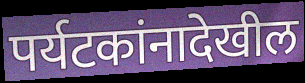
पर्यटकांनादेखील